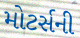
મોટર્સની